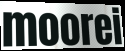
moorei